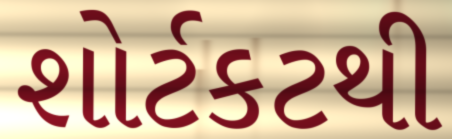
શોર્ટકટથી